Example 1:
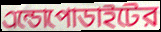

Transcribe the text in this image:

এন্ডোপোডাইটের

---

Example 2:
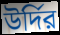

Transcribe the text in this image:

উর্দির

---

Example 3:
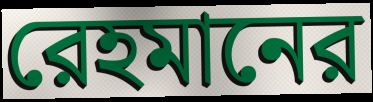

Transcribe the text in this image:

রেহমানের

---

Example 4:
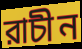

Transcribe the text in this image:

রাচীন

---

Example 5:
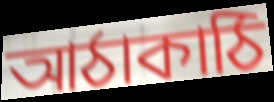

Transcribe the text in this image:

আঠাকাঠি